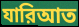
যারিআত